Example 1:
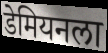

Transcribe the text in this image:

डेमियनला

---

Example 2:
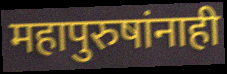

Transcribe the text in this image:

महापुरुषांनाही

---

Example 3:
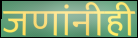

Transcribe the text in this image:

जणांनीही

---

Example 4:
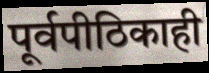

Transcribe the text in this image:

पूर्वपीठिकाही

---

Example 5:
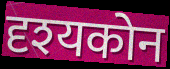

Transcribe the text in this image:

दृश्‍यकोन